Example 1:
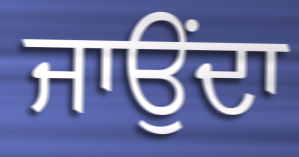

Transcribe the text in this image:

ਜਾਉਂਦਾ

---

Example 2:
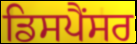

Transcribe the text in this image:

ਡਿਸਪੈਂਸਰ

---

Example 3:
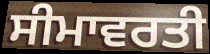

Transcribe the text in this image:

ਸੀਮਾਵਰਤੀ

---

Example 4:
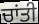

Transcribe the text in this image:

ਚਾਂਤੀ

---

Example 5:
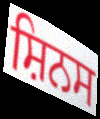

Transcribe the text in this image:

ਸ਼ਿਨਸ